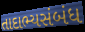
તાદાભ્યસંબંધ